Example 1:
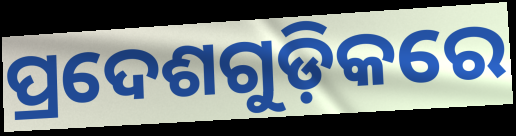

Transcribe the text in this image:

ପ୍ରଦେଶଗୁଡ଼ିକରେ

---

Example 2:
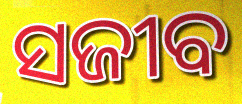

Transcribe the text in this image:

ସଜୀବ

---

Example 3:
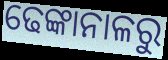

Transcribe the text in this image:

ଢେଙ୍କାନାଳରୁ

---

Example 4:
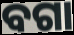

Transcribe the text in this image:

ବଗା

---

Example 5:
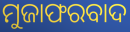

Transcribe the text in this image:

ମୁଜାଫରବାଦ